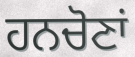
ਹਨਚੋਣਾਂ